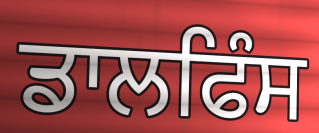
ਡਾਲਫਿੰਸ